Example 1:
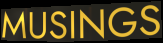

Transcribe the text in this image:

MUSINGS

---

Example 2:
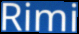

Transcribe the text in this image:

Rimi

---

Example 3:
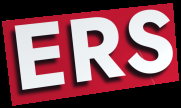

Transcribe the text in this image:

ERS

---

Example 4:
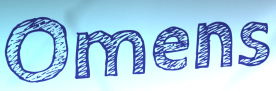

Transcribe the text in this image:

Omens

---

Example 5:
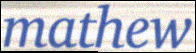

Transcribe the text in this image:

mathew